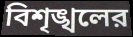
বিশৃঙ্খলের